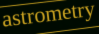
astrometry